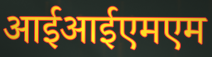
आईआईएमएम